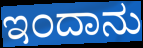
ಇಂದಾನು